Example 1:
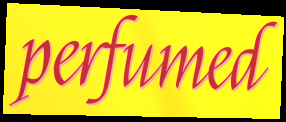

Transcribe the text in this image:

perfumed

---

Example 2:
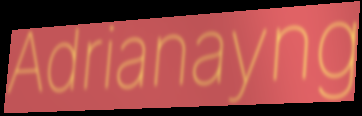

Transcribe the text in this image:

Adrianayng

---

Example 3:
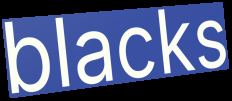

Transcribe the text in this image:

blacks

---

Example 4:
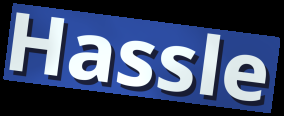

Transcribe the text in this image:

Hassle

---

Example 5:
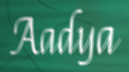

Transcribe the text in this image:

Aadya